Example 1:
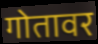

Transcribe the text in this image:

गोतावर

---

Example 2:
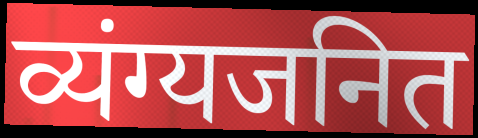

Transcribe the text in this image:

व्यंग्यजनित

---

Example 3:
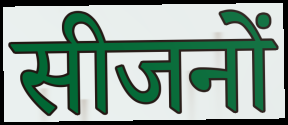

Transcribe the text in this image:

सीजनों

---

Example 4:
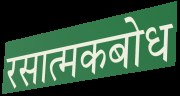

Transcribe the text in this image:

रसात्मकबोध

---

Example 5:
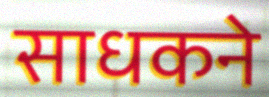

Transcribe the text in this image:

साधकने